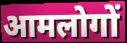
आमलोगों